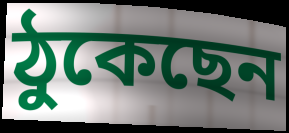
ঠুকেছেন